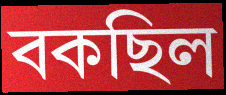
বকছিল